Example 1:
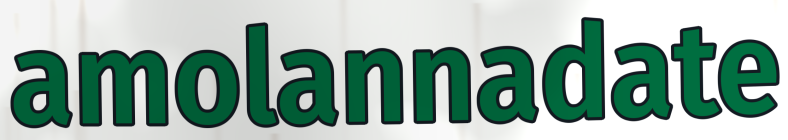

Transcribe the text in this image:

amolannadate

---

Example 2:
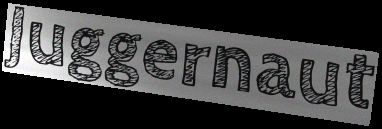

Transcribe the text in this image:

Juggernaut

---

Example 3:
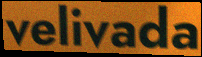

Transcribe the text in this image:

velivada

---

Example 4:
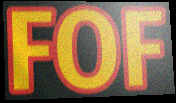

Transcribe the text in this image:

FOF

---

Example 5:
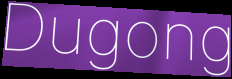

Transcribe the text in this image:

Dugong